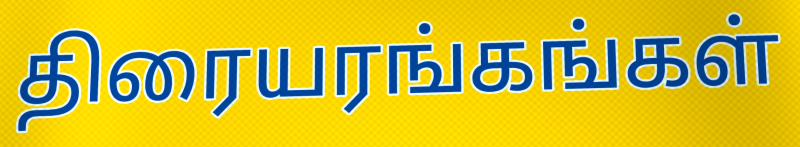
திரையரங்கங்கள்